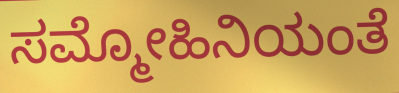
ಸಮ್ಮೋಹಿನಿಯಂತೆ